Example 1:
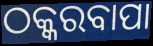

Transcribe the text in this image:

ଠକ୍କରବାପା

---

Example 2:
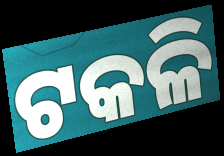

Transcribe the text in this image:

ଟକଳି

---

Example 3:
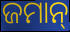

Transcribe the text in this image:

ଜମାନ୍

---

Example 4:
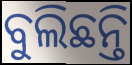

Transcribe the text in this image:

ବୁଲିଛନ୍ତି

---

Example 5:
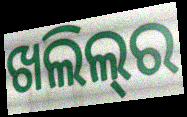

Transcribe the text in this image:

ଖଲିଲ୍‍ର